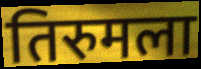
तिरुमला